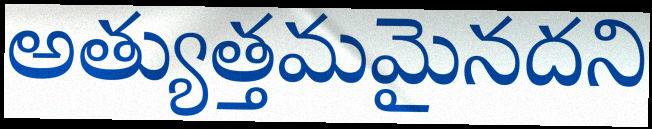
అత్యుత్తమమైనదని